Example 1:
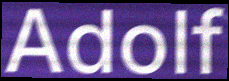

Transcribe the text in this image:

Adolf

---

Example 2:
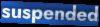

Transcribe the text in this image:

suspended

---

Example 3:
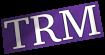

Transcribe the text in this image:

TRM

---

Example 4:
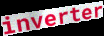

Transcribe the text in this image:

inverter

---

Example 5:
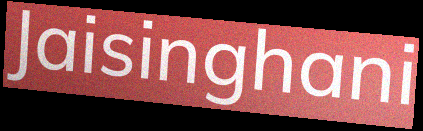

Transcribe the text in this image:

Jaisinghani